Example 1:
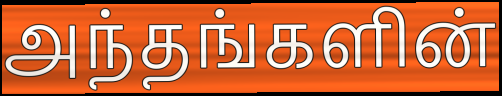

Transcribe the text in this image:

அந்தங்களின்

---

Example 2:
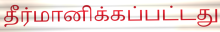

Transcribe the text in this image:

தீர்மானிக்கப்பட்டது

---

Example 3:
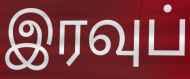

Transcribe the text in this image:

இரவுப்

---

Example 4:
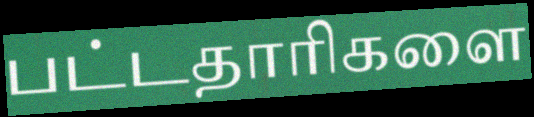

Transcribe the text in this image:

பட்டதாரிகளை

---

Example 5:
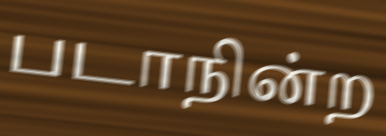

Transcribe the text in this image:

படாநின்ற